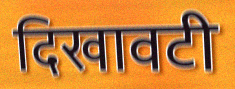
दिखावटी